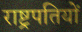
राष्ट्रपतियों